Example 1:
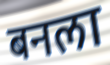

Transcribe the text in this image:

बनला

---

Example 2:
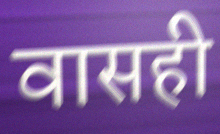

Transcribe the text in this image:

वासही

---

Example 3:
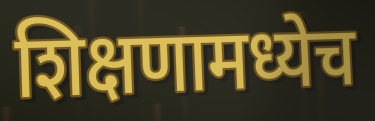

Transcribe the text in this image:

शिक्षणामध्येच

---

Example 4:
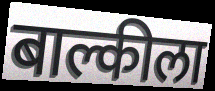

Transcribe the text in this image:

बाल्कीला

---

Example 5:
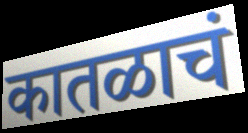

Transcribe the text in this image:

कातळाचं